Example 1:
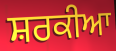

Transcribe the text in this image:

ਸ਼ਰਕੀਆ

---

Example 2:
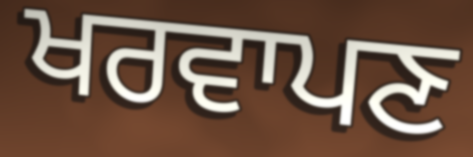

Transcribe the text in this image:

ਖਰਵਾਪਣ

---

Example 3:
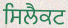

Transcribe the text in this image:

ਸਿਲੈਕਟ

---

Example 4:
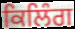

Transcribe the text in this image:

ਕਿਲਿੰਗ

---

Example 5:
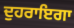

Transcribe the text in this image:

ਦੁਹਰਾਇਗਾ